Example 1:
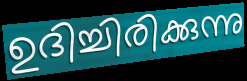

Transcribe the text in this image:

ഉദിച്ചിരിക്കുന്നു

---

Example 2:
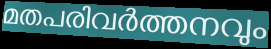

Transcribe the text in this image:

മതപരിവർത്തനവും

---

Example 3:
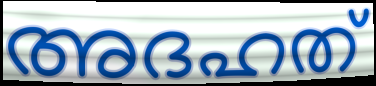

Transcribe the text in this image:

അദഹത്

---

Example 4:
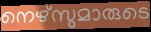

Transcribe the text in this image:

നെഴ്സുമാരുടെ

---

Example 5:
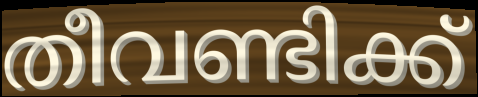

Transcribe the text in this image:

തീവണ്ടിക്ക്